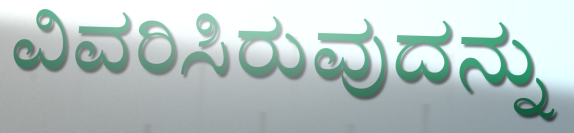
ವಿವರಿಸಿರುವುದನ್ನು